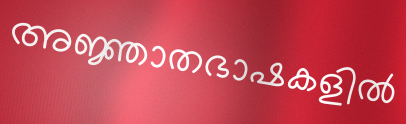
അജ്ഞാതഭാഷകളിൽ